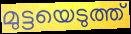
മുട്ടയെടുത്ത്